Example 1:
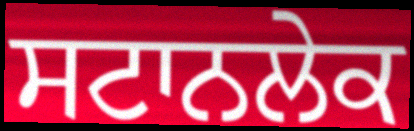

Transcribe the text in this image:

ਸਟਾਨਲੇਕ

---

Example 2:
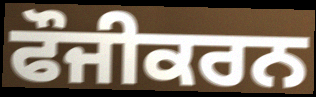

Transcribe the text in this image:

ਫੌਜੀਕਰਨ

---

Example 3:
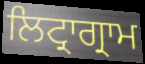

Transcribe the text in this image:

ਲਿਟ੍ਰਾਗ੍ਰਾਮ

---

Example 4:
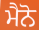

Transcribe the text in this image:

ਮੈਨੋ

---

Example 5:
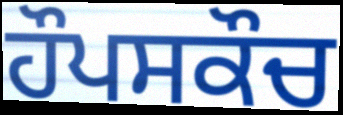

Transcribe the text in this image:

ਹੌਪਸਕੌਚ